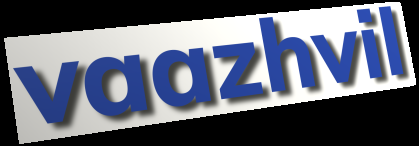
vaazhvil